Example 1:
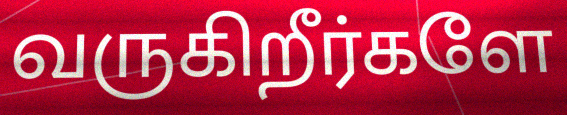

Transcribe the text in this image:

வருகிறீர்களே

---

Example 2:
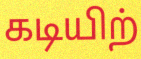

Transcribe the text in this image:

கடியிற்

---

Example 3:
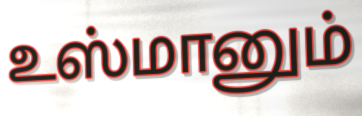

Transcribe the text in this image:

உஸ்மானும்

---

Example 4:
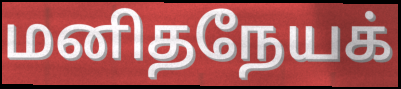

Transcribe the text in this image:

மனிதநேயக்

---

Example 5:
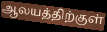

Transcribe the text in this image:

ஆலயத்திற்குள்